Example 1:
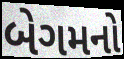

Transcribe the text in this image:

બેગમનો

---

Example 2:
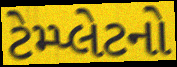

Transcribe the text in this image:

ટેમ્પ્લેટનો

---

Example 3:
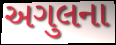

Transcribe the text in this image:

અગુલના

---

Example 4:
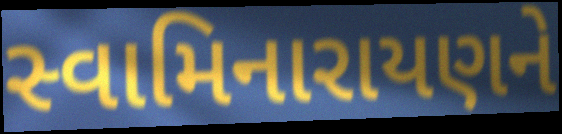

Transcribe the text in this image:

સ્વામિનારાયણને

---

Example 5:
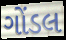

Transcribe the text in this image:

ગોંડલ